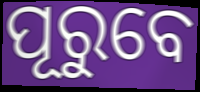
ପୂରୁବେ